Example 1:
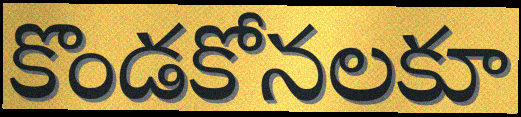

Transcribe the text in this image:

కొండకోనలకూ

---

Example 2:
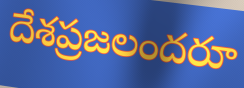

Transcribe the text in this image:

దేశప్రజలందరూ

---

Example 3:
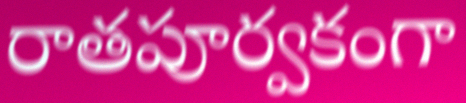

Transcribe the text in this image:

రాతపూర్వకంగా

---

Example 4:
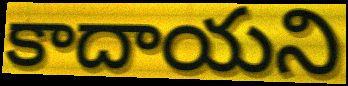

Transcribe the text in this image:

కాదాయని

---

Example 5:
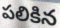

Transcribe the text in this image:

పలికిన